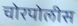
चोरपोलीस